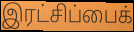
இரட்சிப்பைக்